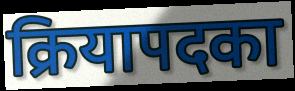
क्रियापदका